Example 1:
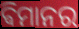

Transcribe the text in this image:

ଵିମାନର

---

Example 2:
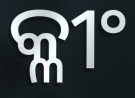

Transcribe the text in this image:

କ୍ଳୀଂ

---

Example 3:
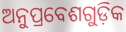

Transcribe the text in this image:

ଅନୁପ୍ରବେଶଗୁଡ଼ିକ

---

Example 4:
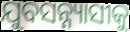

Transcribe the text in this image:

ଯୁବସନ୍ନ୍ୟାସୀକୁ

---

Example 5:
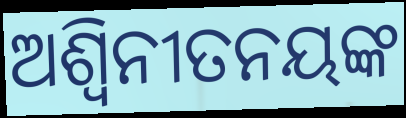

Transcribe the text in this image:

ଅଶ୍ୱିନୀତନୟଙ୍କ